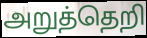
அறுத்தெறி